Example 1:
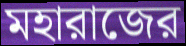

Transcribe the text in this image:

মহারাজের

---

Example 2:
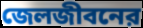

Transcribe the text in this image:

জেলজীবনের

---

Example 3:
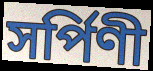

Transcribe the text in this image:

সর্পিণী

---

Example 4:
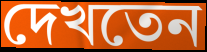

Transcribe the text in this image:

দেখতেন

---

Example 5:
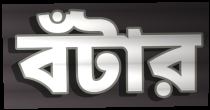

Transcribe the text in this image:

বঁটার